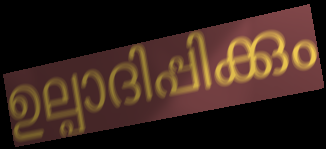
ഉല്പാദിപ്പിക്കും